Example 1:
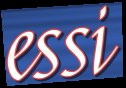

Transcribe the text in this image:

essi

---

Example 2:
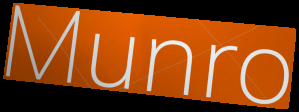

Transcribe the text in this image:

Munro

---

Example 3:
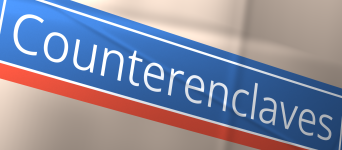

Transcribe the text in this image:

Counterenclaves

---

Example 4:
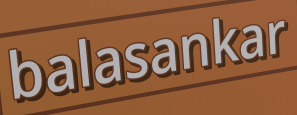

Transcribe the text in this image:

balasankar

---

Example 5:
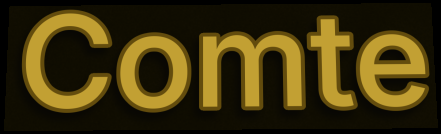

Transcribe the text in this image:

Comte